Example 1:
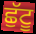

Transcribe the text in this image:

ਛੁੱਟੂ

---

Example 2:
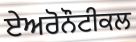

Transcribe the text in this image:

ਏਅਰੋਨੌਟੀਕਲ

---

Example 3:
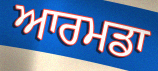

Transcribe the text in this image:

ਆਰਮਡਾ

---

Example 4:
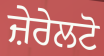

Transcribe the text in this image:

ਜ਼ੇਰੇਲਟੋ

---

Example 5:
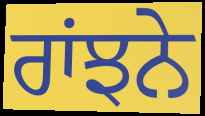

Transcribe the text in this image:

ਰਾਂਝਨੇ